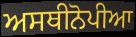
ਅਸਥੀਨੋਪੀਆ